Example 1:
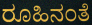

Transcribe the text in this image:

ರೂಹಿನಂತೆ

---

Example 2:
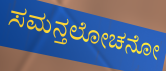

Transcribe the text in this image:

ಸಮನ್ತಲೋಚನೋ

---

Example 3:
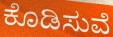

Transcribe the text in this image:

ಕೊಡಿಸುವೆ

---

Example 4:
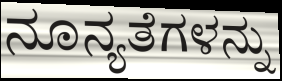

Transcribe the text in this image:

ನೂನ್ಯತೆಗಳನ್ನು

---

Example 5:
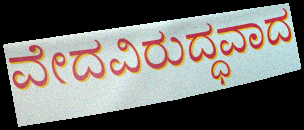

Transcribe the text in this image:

ವೇದವಿರುದ್ಧವಾದ